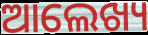
ଆଲେଖ୍ୟ